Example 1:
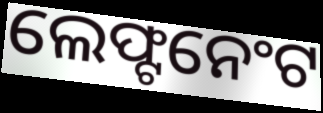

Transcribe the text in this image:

ଲେଫ୍ଟନେଂଟ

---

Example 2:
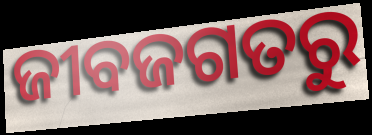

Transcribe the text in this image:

ଜୀବଜଗତରୁ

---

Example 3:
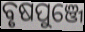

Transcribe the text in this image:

ବୃଷପୁଞ୍ଜେ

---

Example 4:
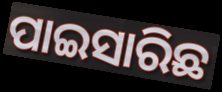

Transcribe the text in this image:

ପାଇସାରିଛ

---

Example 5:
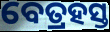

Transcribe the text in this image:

ବେତ୍ରହସ୍ତ